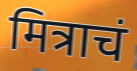
मित्राचं